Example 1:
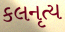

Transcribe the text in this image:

કલનૃત્ય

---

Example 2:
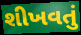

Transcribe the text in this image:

શીખવતું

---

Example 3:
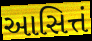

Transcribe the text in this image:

આસિત્તં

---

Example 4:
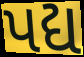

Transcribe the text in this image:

પદ્ય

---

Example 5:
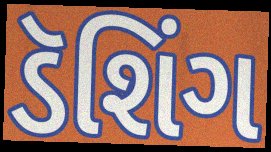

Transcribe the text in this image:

ડૅશિંગ